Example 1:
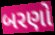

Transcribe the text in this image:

બરણો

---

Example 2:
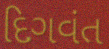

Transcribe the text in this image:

દિગવંત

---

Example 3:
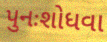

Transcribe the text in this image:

પુનઃશોધવા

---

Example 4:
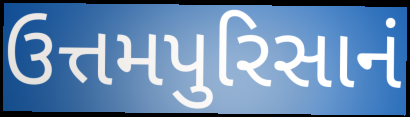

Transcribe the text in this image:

ઉત્તમપુરિસાનં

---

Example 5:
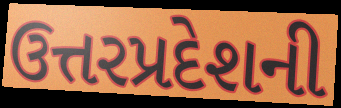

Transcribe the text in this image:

ઉત્તરપ્રદેશની